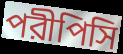
পরীপিসি